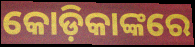
କୋଡ଼ିକାଙ୍କରେ